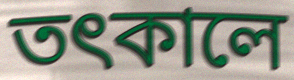
তৎকালে